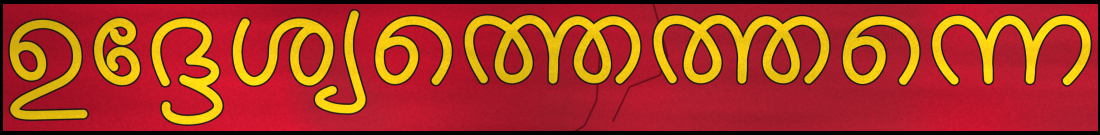
ഉദ്ദേശ്യത്തെത്തന്നെ